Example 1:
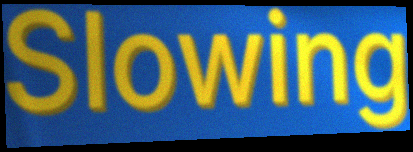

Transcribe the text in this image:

Slowing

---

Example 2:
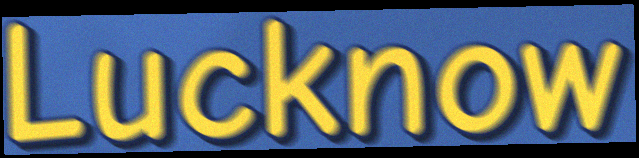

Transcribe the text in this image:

Lucknow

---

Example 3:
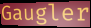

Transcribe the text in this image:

Gaugler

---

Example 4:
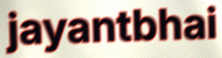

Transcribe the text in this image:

jayantbhai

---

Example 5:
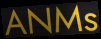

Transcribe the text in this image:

ANMs